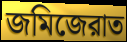
জমিজেরাত